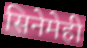
सिनेमेही